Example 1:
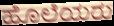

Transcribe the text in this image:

ಹೊಲೆಯರು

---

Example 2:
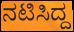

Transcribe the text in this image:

ನಟಿಸಿದ್ದ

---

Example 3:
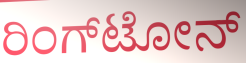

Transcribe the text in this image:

ರಿಂಗ್‌ಟೋನ್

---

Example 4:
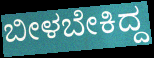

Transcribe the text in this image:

ಬೀಳಬೇಕಿದ್ದ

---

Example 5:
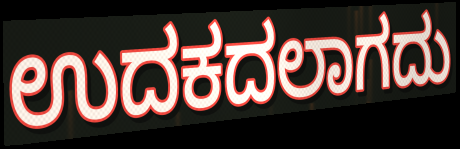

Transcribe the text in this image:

ಉದಕದಲಾಗದು